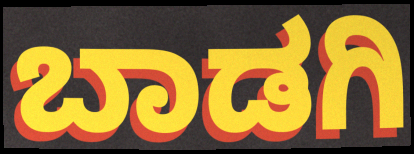
ಬಾಡಗಿ